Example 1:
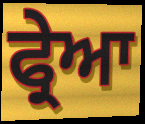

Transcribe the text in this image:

ਫ੍ਰੇਆ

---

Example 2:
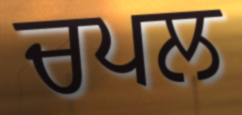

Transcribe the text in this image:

ਚਪਲ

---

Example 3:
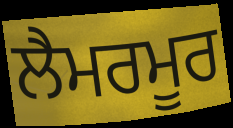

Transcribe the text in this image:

ਲੈਮਰਮੂਰ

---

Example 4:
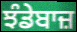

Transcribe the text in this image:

ਝੰਡੇਬਾਜ਼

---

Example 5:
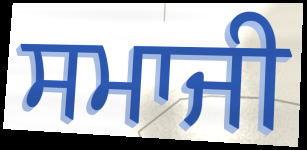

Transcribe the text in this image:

ਸਮਾਜੀ